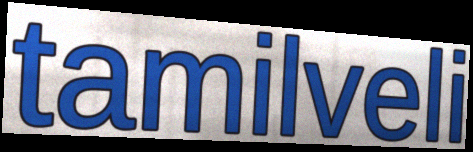
tamilveli